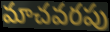
మాచవరపు